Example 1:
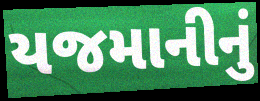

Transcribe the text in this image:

યજમાનીનું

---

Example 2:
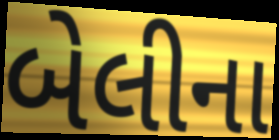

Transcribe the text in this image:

બેલીના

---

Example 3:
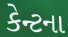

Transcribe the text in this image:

કેન્ટના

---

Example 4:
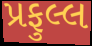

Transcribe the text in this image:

પ્રફુલ્લ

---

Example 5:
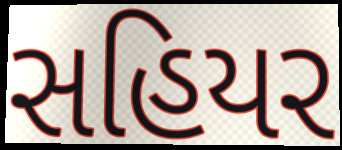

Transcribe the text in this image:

સહિયર